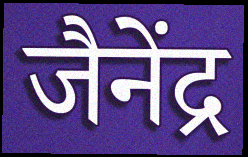
जैनेंद्र